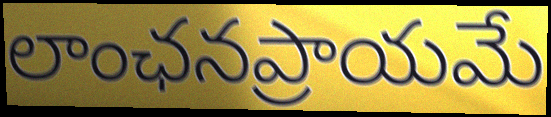
లాంఛనప్రాయమే